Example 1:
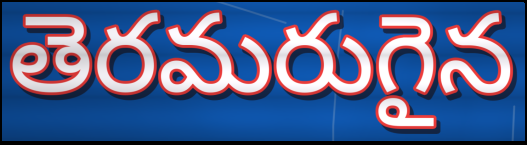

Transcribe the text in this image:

తెరమరుగైన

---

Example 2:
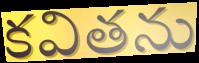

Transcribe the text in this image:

కవితను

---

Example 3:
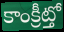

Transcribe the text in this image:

కాంక్రీట్తో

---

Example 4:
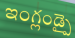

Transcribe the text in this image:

ఇంగ్లండ్పై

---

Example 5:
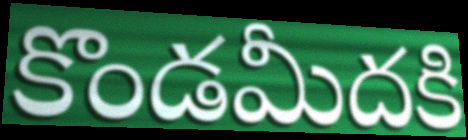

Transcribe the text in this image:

కొండమీదకి